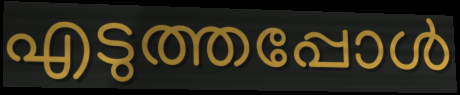
എടുത്തപ്പോൾ